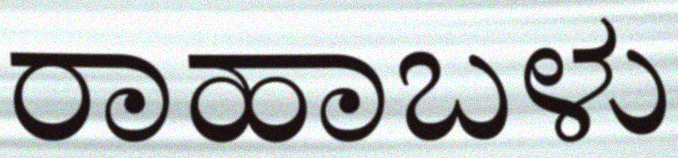
ರಾಹಾಬಳು